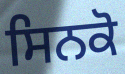
ਸਿਨਕੋ